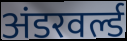
अंडरवर्ल्ड